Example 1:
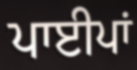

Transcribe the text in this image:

ਪਾਈਪਾਂ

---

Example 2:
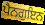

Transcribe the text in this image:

ਪੈਨਗੁਇਨ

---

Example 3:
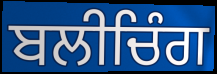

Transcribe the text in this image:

ਬਲੀਚਿੰਗ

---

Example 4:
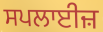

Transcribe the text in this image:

ਸਪਲਾਈਜ਼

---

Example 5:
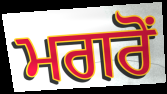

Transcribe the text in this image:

ਮਗਰੋਂ